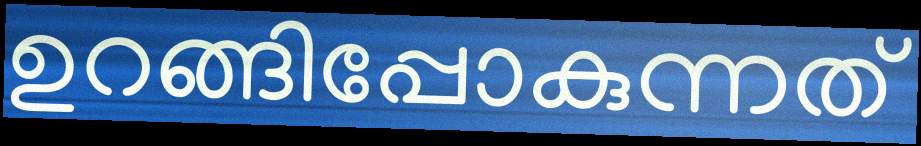
ഉറങ്ങിപ്പോകുന്നത്